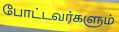
போட்டவர்களும்